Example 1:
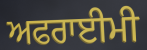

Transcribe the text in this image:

ਅਫਰਾਈਮੀ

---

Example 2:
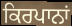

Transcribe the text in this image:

ਕਿਰਪਾਨਾਂ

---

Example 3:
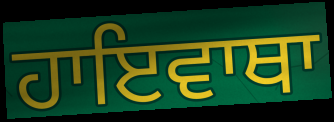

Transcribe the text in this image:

ਹਾਇਵਾਥਾ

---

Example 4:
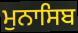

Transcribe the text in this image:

ਮੁਨਾਸਿਬ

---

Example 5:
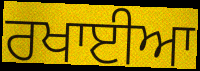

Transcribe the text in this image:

ਰਖਾਈਆ